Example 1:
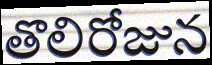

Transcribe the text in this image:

తొలిరోజున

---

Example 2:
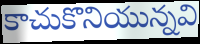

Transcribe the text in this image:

కాచుకొనియున్నవి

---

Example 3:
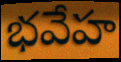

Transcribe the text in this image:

భవేహ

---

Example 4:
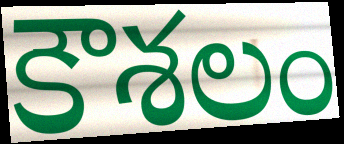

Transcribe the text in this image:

కౌశలం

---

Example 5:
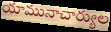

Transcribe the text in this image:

యామునాచార్యుల